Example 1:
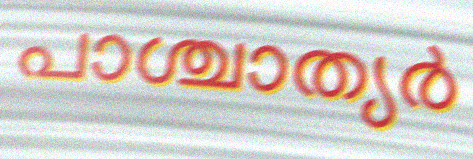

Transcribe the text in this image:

പാശ്ചാത്യർ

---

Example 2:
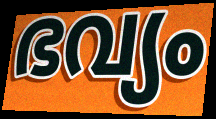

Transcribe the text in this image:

ഭവ്യം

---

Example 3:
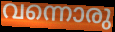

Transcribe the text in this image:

വന്നൊരു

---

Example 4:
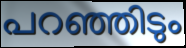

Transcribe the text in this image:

പറഞ്ഞിടും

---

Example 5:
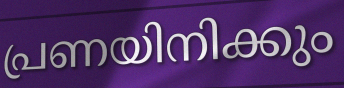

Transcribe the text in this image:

പ്രണയിനിക്കും